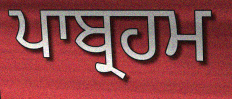
ਪਾਬ੍ਰਹਮ